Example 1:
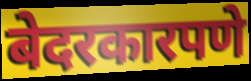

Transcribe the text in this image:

बेदरकारपणे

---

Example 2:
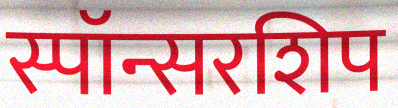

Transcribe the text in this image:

स्पॉन्सरशिप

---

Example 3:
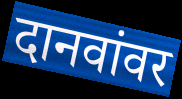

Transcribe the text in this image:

दानवांवर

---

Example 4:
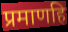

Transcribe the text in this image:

प्रमाणहि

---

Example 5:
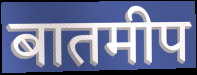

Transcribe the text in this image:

बातमीप